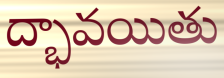
ద్భావయితు